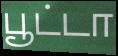
பூட்டா